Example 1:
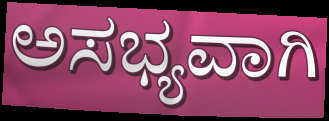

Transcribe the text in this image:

ಅಸಭ್ಯವಾಗಿ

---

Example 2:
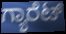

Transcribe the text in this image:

ಗ್ಯಾರೆಟ್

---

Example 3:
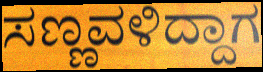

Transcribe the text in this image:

ಸಣ್ಣವಳಿದ್ದಾಗ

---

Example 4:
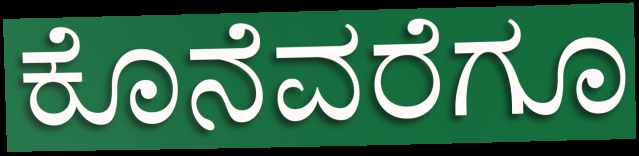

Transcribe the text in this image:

ಕೊನೆವರೆಗೂ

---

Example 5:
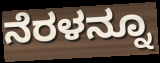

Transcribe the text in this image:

ನೆರಳನ್ನೂ